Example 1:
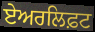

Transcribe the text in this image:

ਏਅਰਲਿਫ਼ਟ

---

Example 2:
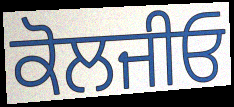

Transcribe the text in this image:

ਕੋਲਜੀਓ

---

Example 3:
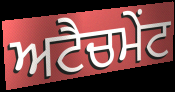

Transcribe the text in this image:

ਅਟੈਚਮੇਂਟ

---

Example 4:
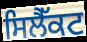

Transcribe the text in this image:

ਸਿਲੈੱਕਟ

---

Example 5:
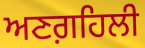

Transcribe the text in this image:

ਅਣਗ਼ਹਿਲੀ